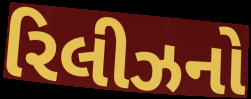
રિલીઝનો